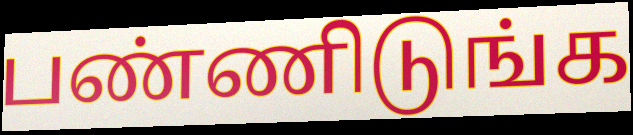
பண்ணிடுங்க